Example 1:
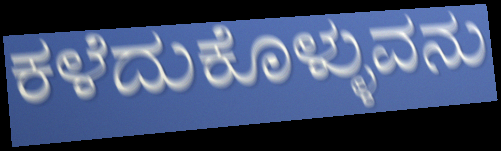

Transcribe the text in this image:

ಕಳೆದುಕೊಳ್ಳುವನು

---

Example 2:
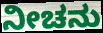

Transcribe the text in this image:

ನೀಚನು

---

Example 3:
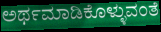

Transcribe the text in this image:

ಅರ್ಥಮಾಡಿಕೊಳ್ಳುವಂತೆ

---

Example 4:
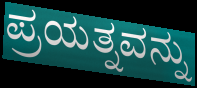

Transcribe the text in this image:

ಪ್ರಯತ್ನವನ್ನು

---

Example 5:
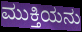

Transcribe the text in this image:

ಮುಕ್ತಿಯನು